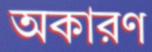
অকারণ